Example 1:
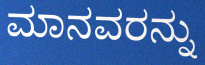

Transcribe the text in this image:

ಮಾನವರನ್ನು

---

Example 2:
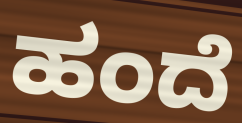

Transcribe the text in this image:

ಹಂದೆ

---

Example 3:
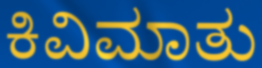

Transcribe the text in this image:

ಕಿವಿಮಾತು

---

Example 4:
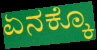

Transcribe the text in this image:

ಏನಕ್ಕೊ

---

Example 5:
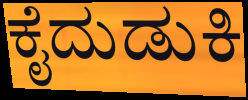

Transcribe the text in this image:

ಕೈದುಡುಕಿ